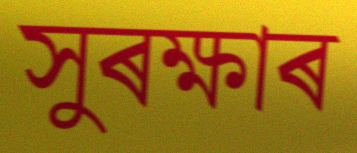
সুৰক্ষাৰ